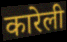
कारेली